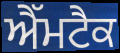
ਐੱਮਟੈਕ